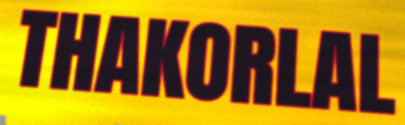
THAKORLAL